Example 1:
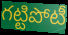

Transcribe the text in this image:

గట్టిపోటీ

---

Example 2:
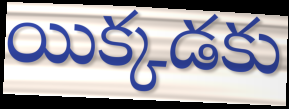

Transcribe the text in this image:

యిక్కడకు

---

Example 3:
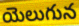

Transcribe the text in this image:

యెలుగున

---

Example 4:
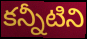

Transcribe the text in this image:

కన్నీటిని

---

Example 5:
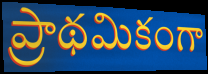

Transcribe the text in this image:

ప్రాథమికంగా